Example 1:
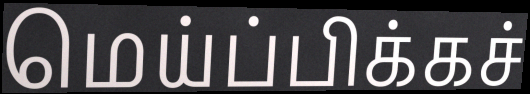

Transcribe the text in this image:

மெய்ப்பிக்கச்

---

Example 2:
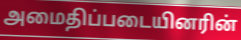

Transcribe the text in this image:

அமைதிப்படையினரின்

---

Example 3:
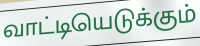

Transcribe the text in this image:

வாட்டியெடுக்கும்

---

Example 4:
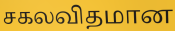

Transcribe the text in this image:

சகலவிதமான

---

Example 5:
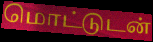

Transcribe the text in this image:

மொட்டுடன்